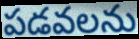
పడవలను